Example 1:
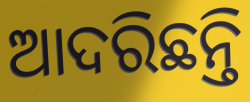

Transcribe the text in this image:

ଆଦରିଛନ୍ତି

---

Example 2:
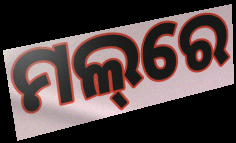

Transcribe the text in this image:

ମଲ୍‌ରେ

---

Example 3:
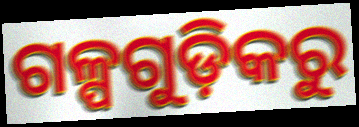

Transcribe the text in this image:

ଗଳ୍ପଗୁଡ଼ିକରୁ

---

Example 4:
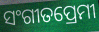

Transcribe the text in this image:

ସଂଗୀତପ୍ରେମୀ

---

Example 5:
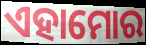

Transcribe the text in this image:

ଏହାମୋର